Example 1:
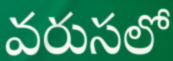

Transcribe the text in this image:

వరుసలో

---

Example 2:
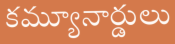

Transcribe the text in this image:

కమ్యూనార్డులు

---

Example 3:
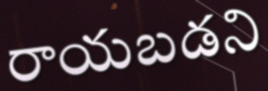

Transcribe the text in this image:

రాయబడని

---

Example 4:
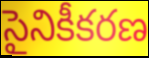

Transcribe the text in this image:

సైనికీకరణ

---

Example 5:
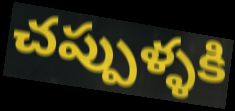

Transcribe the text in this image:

చప్పుళ్ళకి